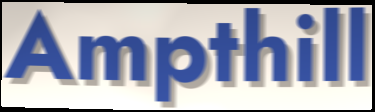
Ampthill